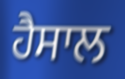
ਹੈਸਾਲ